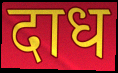
दाध